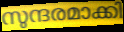
സുന്ദരമാക്കി